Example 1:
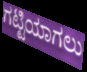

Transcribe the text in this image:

ಗಟ್ಟಿಯಾಗಲು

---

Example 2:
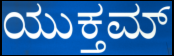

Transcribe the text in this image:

ಯುಕ್ತಮ್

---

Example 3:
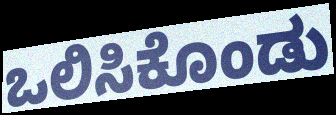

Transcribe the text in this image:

ಒಲಿಸಿಕೊಂಡು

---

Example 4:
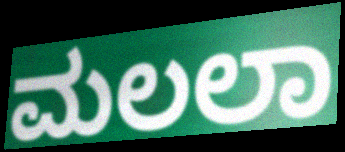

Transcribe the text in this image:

ಮಲಲಾ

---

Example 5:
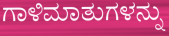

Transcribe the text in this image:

ಗಾಳಿಮಾತುಗಳನ್ನು